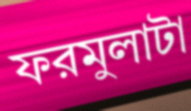
ফরমুলাটা